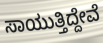
ಸಾಯುತ್ತಿದ್ದೇವೆ